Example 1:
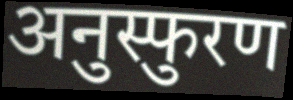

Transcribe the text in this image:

अनुस्फुरण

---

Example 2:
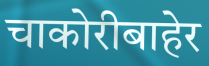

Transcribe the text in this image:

चाकोरीबाहेर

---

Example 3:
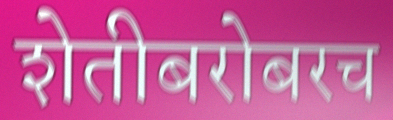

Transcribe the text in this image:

शेतीबरोबरच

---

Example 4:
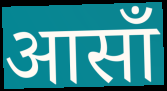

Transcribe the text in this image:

आसाँ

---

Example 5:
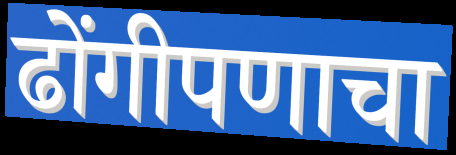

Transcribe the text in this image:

ढोंगीपणाचा